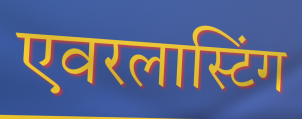
एवरलास्टिंग